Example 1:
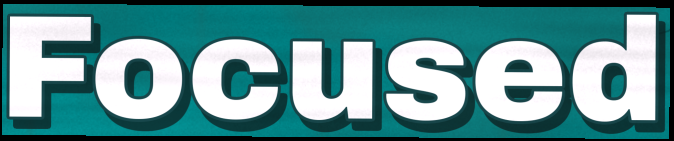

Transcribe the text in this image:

Focused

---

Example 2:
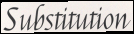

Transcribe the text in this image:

Substitution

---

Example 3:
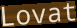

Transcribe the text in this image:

Lovat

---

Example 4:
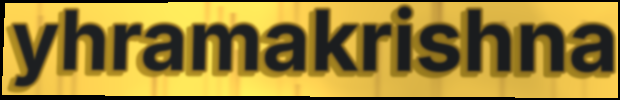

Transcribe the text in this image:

yhramakrishna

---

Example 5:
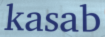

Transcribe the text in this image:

kasab